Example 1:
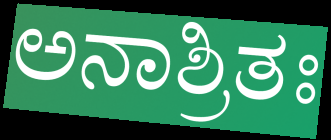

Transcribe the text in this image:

ಅನಾಶ್ರಿತಃ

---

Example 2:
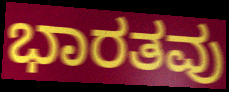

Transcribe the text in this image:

ಭಾರತವು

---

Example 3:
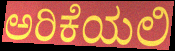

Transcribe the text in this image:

ಅರಿಕೆಯಲಿ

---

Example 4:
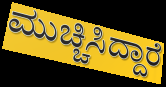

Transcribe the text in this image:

ಮುಚ್ಚಿಸಿದ್ದಾರೆ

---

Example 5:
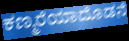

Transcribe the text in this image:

ಕಣ್ಮರೆಯಾದೊಡನೆ